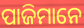
ପାଜିମାନେ